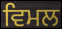
ਵਿਮਲ